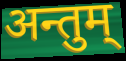
अन्तुम्